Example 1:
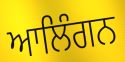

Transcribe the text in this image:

ਆਲਿੰਗਨ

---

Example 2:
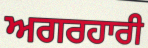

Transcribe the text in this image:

ਅਗਰਹਾਰੀ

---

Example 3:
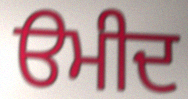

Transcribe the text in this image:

ੳਮੀਦ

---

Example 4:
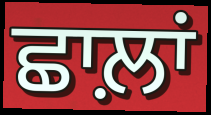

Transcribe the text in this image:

ਛਾਲ਼ਾਂ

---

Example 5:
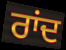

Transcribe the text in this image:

ਰਾਂਦ